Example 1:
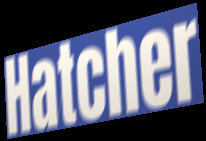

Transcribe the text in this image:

Hatcher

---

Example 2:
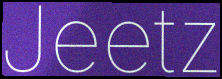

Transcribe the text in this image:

Jeetz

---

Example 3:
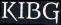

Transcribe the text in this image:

KIBG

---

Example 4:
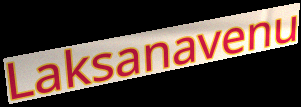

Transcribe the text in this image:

Laksanavenu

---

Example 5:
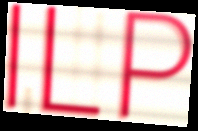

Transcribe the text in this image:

ILP